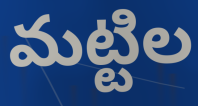
మట్టిల